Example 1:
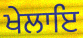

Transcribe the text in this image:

ਖੇਲਾਇ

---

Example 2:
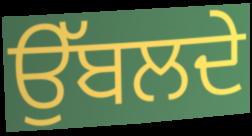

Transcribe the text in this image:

ਉੱਬਲਦੇ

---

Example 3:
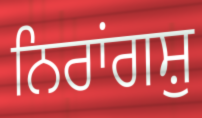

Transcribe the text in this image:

ਨਿਰਾਂਗਸ਼ੁ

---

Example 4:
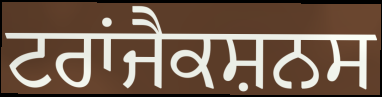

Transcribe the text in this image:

ਟਰਾਂਜੈਕਸ਼ਨਸ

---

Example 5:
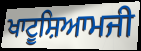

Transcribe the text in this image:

ਖਾਟੂਸ਼ਿਆਮਜੀ